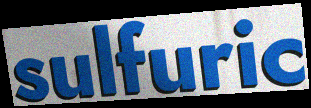
sulfuric